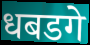
धबडगे